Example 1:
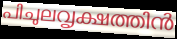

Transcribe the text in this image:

പിചുലവൃക്ഷത്തിൻ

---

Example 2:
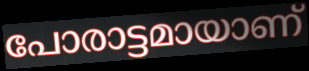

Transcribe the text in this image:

പോരാട്ടമായാണ്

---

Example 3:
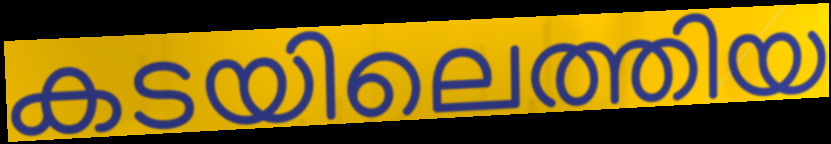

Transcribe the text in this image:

കടയിലെത്തിയ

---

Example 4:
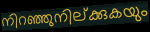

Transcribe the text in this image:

നിറഞ്ഞുനില്ക്കുകയും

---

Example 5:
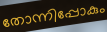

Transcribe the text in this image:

തോന്നിപ്പോകും